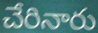
చేరినారు